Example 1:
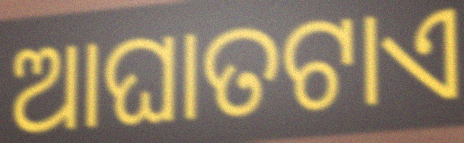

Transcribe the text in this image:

ଆଘାତଟାଏ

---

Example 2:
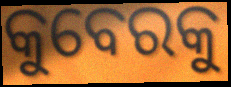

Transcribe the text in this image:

କୁବେରକୁ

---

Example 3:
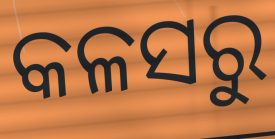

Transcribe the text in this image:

କଳସରୁ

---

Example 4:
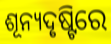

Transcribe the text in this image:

ଶୂନ୍ୟଦୃଷ୍ଟିରେ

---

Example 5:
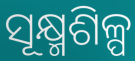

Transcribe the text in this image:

ସୂକ୍ଷ୍ମଶିଳ୍ପ